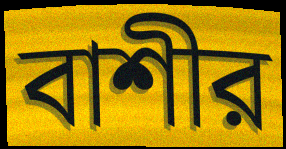
বাশীর